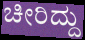
ಚೀರಿದ್ದು